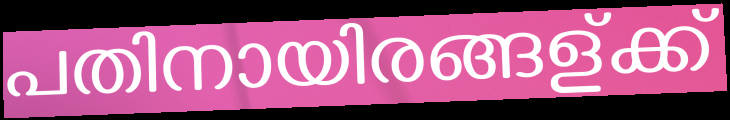
പതിനായിരങ്ങള്ക്ക്